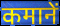
कमानें